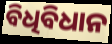
ବିଧିବିଧାନ